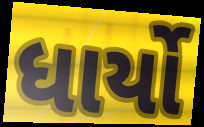
ધાર્યો